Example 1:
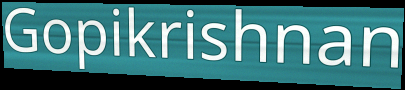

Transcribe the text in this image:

Gopikrishnan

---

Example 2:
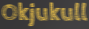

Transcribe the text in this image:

Okjukull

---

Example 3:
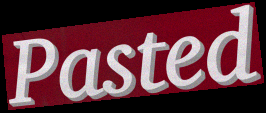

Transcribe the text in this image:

Pasted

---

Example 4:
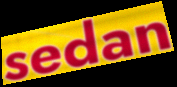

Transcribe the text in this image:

sedan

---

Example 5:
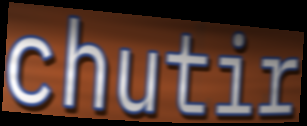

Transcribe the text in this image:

chutir